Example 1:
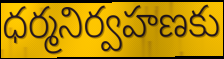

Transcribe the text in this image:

ధర్మనిర్వహణకు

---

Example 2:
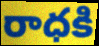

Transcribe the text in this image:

రాధకి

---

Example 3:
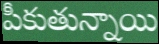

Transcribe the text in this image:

పీకుతున్నాయి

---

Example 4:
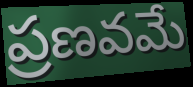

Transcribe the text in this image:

ప్రణవమే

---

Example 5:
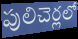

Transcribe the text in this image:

పులిచెర్లలో